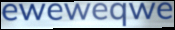
eweweqwe